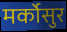
मर्कोसुर